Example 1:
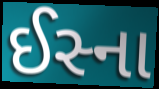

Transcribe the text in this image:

ઈસ્ના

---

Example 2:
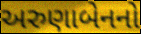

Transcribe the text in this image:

અરુણાબેનનો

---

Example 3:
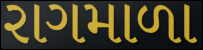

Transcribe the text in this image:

રાગમાળા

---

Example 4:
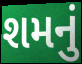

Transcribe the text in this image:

શમનું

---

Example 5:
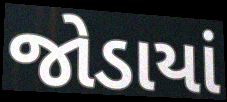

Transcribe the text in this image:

જોડાયાં